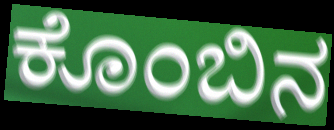
ಕೊಂಬಿನ